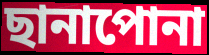
ছানাপোনা